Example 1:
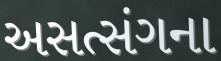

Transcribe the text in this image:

અસત્સંગના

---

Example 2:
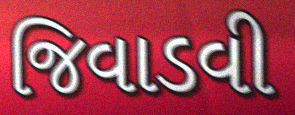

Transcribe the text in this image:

જિવાડવી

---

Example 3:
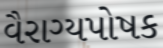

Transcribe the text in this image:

વૈરાગ્યપોષક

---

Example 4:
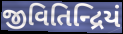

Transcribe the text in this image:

જીવિતિન્દ્રિયં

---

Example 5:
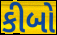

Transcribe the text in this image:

કીબો